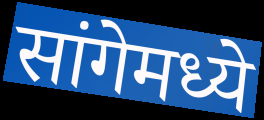
सांगेमध्ये